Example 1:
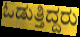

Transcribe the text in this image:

ಓಡುತ್ತಿದ್ದರು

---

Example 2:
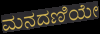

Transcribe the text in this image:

ಮನದಣಿಯೇ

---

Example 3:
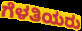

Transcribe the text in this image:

ಗೆಳತಿಯರು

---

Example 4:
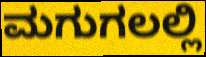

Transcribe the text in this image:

ಮಗುಗಲಲ್ಲಿ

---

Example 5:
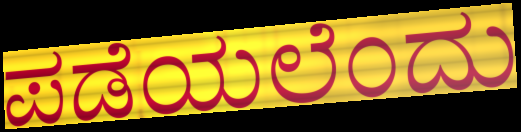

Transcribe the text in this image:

ಪಡೆಯಲೆಂದು